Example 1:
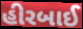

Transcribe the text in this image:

હીરબાઈ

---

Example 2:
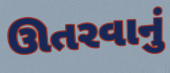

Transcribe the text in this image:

ઊતરવાનું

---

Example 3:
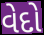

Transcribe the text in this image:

વેદો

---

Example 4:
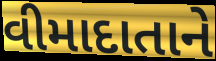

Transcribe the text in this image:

વીમાદાતાને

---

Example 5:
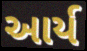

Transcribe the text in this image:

આર્ય